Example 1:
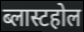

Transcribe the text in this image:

ब्लास्टहोल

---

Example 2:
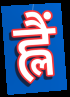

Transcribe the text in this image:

ह्लैं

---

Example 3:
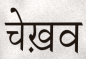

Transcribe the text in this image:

चेख़व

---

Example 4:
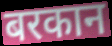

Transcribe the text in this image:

बरकान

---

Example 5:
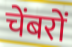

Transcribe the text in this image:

चेंबरों